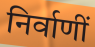
निर्वाणीं